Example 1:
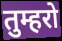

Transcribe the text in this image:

तुम्हरो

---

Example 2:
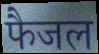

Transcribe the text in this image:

फैजल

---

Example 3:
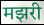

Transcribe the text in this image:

मझरी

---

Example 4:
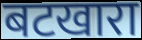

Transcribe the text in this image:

बटखारा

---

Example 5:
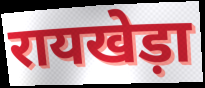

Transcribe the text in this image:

रायखेड़ा